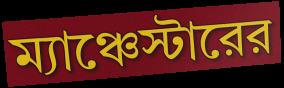
ম্যাঞ্চেস্টারের